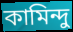
কামিন্দু